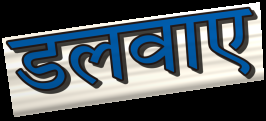
डलवाए